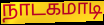
நாடகமாடி